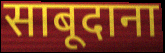
साबूदाना